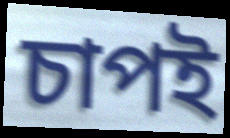
চাপই